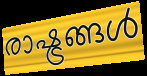
രാഷ്ട്രങ്ങൾ